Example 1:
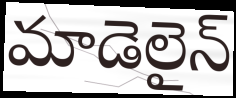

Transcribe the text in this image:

మాడెలైన్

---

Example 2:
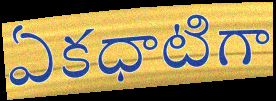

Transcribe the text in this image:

ఏకధాటిగా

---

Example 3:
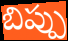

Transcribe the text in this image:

బిప్పు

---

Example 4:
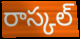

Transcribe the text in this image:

రాస్కల్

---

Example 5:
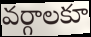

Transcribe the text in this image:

వర్గాలకూ